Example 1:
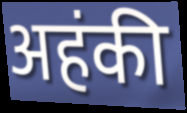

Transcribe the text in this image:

अहंकी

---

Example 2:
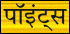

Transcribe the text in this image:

पॉइंट्स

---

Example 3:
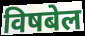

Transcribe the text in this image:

विषबेल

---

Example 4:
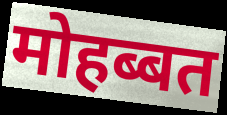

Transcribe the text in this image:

मोहब्बत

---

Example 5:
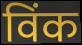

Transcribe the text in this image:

विंक